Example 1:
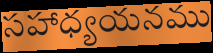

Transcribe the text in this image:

సహాధ్యయనము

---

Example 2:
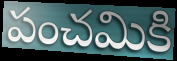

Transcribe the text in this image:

పంచమికి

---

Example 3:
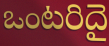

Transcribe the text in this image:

ఒంటరిదై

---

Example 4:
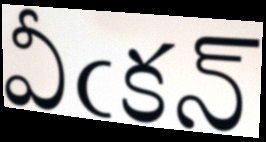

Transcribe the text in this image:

వీఁకన్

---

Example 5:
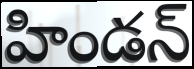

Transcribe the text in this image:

హిండన్